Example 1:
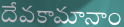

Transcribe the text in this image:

దేవకామానాం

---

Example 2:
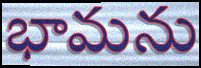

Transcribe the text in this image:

భామను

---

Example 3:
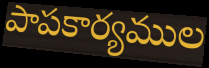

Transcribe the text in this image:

పాపకార్యముల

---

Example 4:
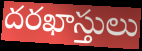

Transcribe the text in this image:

దరఖాస్తులు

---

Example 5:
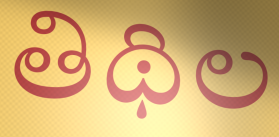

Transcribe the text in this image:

తిథిల